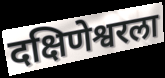
दक्षिणेश्वरला